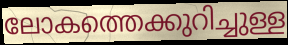
ലോകത്തെക്കുറിച്ചുള്ള